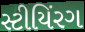
સ્ટીયિંરગ